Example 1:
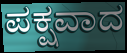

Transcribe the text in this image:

ಪಕ್ಷವಾದ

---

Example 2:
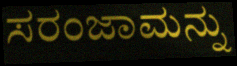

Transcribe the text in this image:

ಸರಂಜಾಮನ್ನು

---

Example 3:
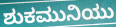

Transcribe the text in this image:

ಶುಕಮುನಿಯು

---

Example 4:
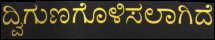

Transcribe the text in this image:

ದ್ವಿಗುಣಗೊಳಿಸಲಾಗಿದೆ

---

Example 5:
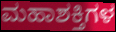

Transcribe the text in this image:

ಮಹಾಶಕ್ತಿಗಳ